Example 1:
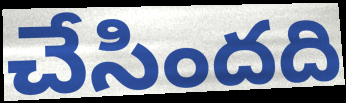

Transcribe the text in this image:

చేసిందది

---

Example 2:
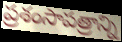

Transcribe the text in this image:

ప్రశంసాపత్రాన్ని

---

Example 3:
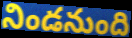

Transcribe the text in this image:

నిండనుంది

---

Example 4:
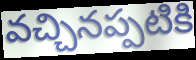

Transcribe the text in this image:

వచ్చినప్పటికి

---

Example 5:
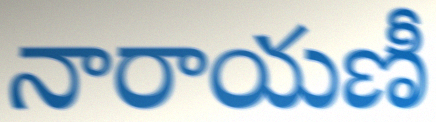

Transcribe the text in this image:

నారాయణీ